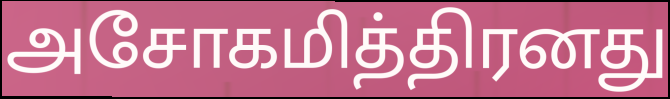
அசோகமித்திரனது